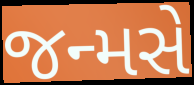
જન્મસે